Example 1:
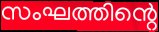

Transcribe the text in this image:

സംഘത്തിന്റെ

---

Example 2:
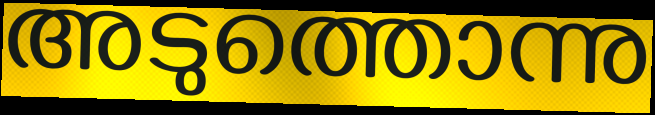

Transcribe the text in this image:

അടുത്തൊന്നു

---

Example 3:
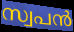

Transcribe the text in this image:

സ്വപൻ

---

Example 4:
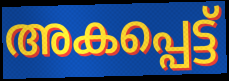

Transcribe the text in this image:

അകപ്പെട്ട്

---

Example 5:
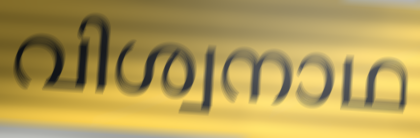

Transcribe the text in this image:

വിശ്വനാഥ